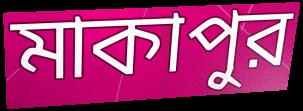
মাকাপুর